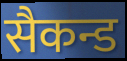
सैकन्ड